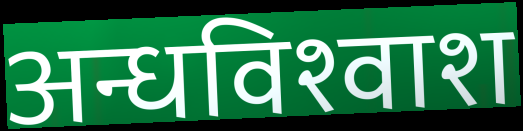
अन्धविश्वाश